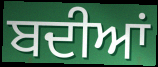
ਬਦੀਆਂ